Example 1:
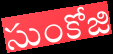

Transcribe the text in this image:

సుంకోజి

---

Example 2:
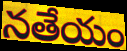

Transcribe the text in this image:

నతేయం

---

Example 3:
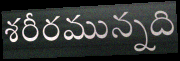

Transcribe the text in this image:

శరీరమున్నది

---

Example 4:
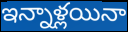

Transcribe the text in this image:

ఇన్నాళ్లయినా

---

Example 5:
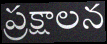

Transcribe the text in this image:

ప్రక్షాలన